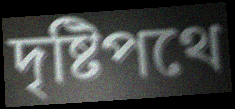
দৃষ্টিপথে